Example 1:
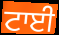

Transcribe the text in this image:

ਟਾਈ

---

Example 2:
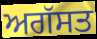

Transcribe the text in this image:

ਅਗੱਸਤ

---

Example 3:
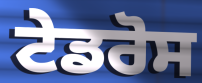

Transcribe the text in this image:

ਟੇਡਰੋਸ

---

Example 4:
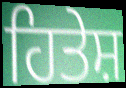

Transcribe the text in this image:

ਹਿਤੇਸ਼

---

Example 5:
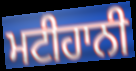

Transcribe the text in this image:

ਮਟੀਹਾਨੀ